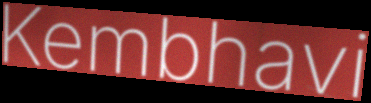
Kembhavi